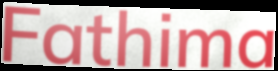
Fathima